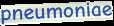
pneumoniae